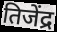
तिजेंद्र